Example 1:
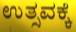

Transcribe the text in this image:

ಉತ್ಸವಕ್ಕೆ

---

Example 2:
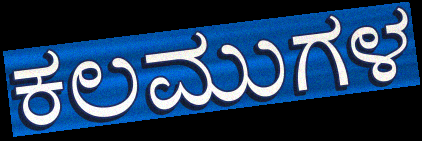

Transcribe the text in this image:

ಕಲಮುಗಳ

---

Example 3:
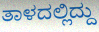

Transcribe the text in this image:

ತಾಳದಲ್ಲಿದ್ದು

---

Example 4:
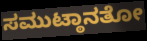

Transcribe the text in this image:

ಸಮುಟ್ಠಾನತೋ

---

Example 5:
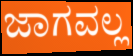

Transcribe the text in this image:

ಜಾಗವಲ್ಲ